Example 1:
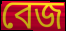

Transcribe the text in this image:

বেজ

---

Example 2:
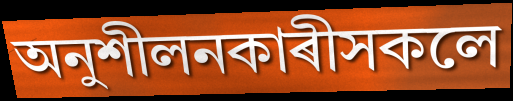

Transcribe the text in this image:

অনুশীলনকাৰীসকলে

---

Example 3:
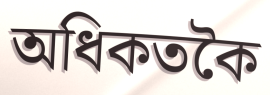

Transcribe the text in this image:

অধিকতকৈ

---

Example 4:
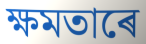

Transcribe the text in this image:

ক্ষমতাৰে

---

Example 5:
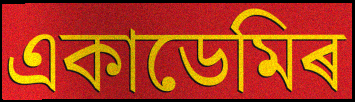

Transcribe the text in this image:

একাডেমিৰ